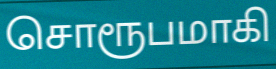
சொரூபமாகி